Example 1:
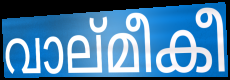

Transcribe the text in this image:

വാല്മീകീ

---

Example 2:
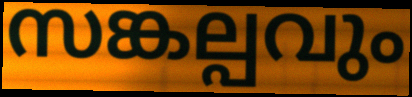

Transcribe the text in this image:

സങ്കല്പവും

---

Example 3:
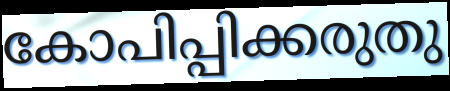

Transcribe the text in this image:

കോപിപ്പിക്കരുതു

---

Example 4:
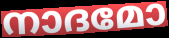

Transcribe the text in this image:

നാദമോ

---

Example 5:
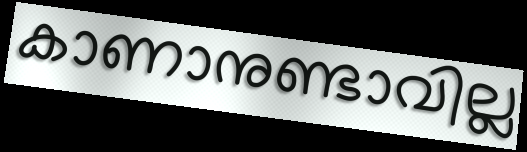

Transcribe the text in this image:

കാണാനുണ്ടാവില്ല